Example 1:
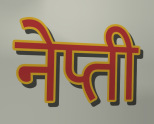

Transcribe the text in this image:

नेप्ती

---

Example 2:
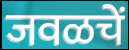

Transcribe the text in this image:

जवळचें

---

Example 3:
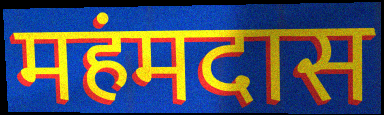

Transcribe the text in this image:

महंमदास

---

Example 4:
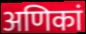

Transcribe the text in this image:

अणिकां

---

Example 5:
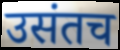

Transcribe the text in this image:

उसंतच